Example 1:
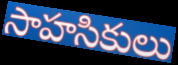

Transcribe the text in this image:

సాహసికులు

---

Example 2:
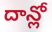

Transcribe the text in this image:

దాన్లో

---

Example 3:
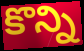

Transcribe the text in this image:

కొన్ని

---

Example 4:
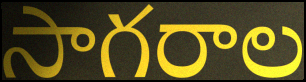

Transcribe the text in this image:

సాగరాల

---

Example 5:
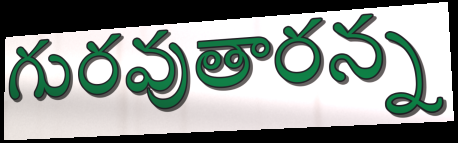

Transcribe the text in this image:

గురవుతారన్న